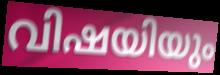
വിഷയിയും